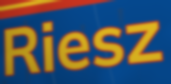
Riesz